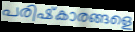
പരിഷ്‌കാരങ്ങളെ